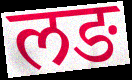
लङ